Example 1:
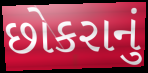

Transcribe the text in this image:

છોકરાનું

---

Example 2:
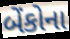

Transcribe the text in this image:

બેંકોના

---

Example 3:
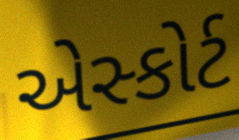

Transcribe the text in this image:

એસ્કોર્ટ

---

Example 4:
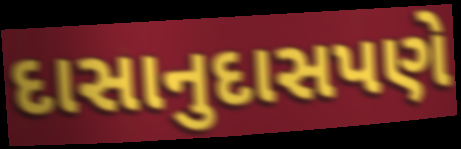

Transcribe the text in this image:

દાસાનુદાસપણે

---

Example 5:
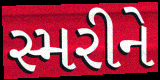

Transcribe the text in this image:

સ્મરીને